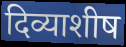
दिव्याशीष